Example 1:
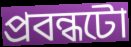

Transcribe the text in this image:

প্ৰবন্ধটো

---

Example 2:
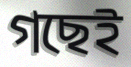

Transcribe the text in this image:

গছেই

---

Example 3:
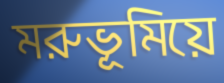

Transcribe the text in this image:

মৰুভূমিয়ে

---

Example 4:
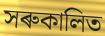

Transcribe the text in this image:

সৰুকালিত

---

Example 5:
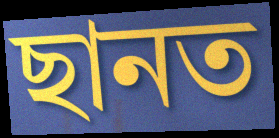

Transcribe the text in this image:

ছানত